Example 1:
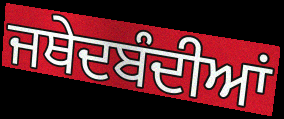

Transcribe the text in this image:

ਜਥੇਦਬੰਦੀਆਂ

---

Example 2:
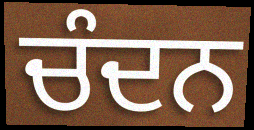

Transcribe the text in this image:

ਚੰਦਨ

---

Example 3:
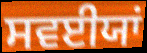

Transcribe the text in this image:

ਸਵਈਯਾਂ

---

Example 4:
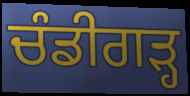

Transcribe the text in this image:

ਚੰਡੀਗਡ਼੍ਹ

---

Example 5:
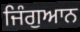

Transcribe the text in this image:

ਜਿੰਗੁਆਨ